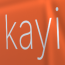
kayi